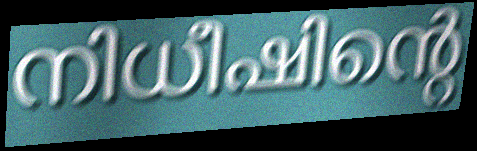
നിധീഷിന്റെ